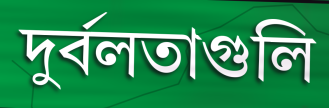
দুর্বলতাগুলি